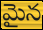
మైన